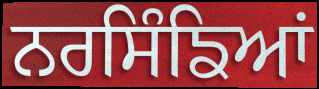
ਨਰਸਿੰਙਿਆਂ